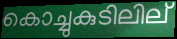
കൊച്ചുകുടിലില്